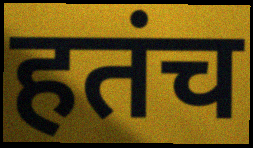
हतंच